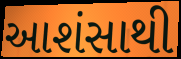
આશંસાથી